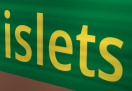
islets